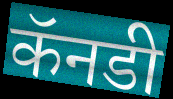
कॅनडी